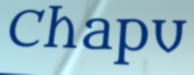
Chapu